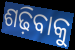
ଶଢ଼ିବାକୁ